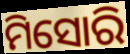
ମିସୋରି